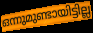
ഒന്നുമുണ്ടായിട്ടില്ല